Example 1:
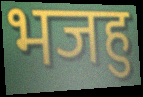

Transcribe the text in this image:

भजहु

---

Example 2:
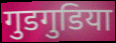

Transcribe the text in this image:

गुडगुडिया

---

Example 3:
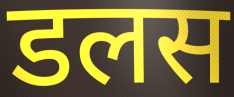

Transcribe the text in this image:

डलस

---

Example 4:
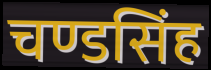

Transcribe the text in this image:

चण्डसिंह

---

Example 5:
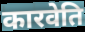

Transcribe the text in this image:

कारवेति